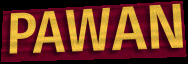
PAWAN